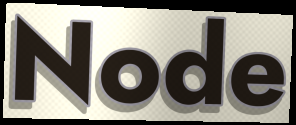
Node